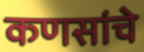
कणसांचे